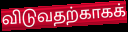
விடுவதற்காகக்